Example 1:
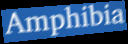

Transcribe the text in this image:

Amphibia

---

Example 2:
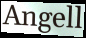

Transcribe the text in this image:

Angell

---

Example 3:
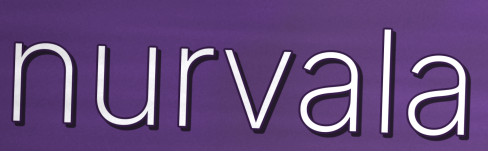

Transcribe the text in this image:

nurvala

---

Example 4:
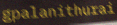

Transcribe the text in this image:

gpalanithurai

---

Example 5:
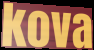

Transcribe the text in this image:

kova